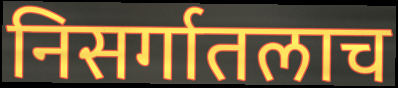
निसर्गातलाच